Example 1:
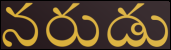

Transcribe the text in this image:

నరుడు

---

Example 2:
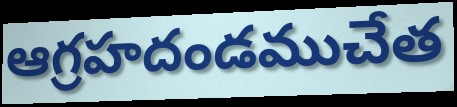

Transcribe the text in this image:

ఆగ్రహదండముచేత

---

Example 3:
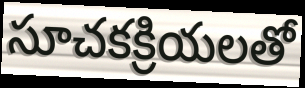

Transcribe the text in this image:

సూచకక్రియలతో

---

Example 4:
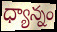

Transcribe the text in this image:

ధ్యాన్నం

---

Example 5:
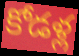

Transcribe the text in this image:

కోడళ్ల